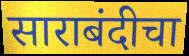
साराबंदीचा